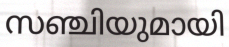
സഞ്ചിയുമായി